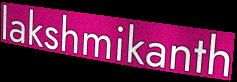
lakshmikanth